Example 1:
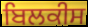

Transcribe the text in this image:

ਬਿਲਕੀਸ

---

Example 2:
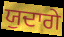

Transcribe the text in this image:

ਯੁਦਾਗੇ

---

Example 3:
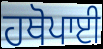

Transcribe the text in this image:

ਹਥੋਪਾਈ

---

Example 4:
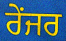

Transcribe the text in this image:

ਰੇਂਜਰ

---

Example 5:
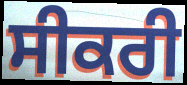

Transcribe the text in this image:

ਸੀਕਰੀ